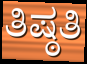
ತಿಷ್ಠತಿ